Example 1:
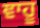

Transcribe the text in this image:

ਞਾਹੂ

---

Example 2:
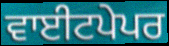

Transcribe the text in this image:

ਵਾਈਟਪੇਪਰ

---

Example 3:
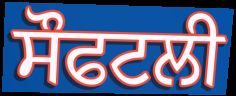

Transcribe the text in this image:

ਸੌਫਟਲੀ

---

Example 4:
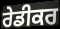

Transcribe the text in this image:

ਰੇਡੀਕਰ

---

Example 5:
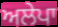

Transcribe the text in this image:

ਅਲੇਪਾ